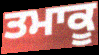
ਤਮਾਕੂ